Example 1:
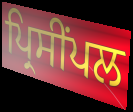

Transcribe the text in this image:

ਪ੍ਰਿਸੀਂਪਲ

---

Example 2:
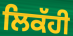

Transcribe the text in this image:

ਲਿਕੱਹੀ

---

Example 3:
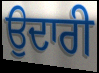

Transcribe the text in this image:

ਉਦਾਰੀ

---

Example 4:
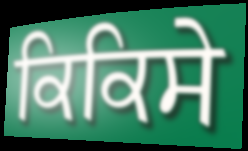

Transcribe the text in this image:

ਕਿਕਿਸੇ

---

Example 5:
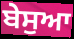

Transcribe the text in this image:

ਬੇਸੁਆ